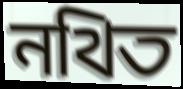
নথিত